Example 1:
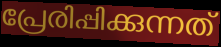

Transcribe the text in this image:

പ്രേരിപ്പിക്കുന്നത്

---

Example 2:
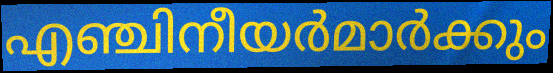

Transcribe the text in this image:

എഞ്ചിനീയർമാർക്കും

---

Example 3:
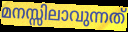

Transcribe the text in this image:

മനസ്സിലാവുന്നത്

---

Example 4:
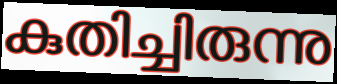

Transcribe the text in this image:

കുതിച്ചിരുന്നു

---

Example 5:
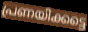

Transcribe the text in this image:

പ്രണയിക്കട്ടെ